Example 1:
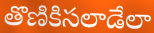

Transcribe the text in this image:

తొణికిసలాడేలా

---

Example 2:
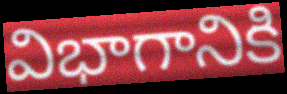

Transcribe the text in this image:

విభాగానికి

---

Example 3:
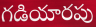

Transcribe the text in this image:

గడియారపు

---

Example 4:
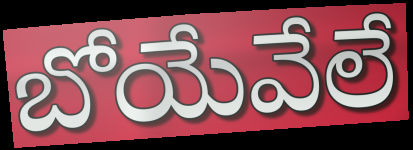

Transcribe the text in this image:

బోయేవేలే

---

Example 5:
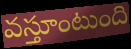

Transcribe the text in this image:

వస్తూంటుంది